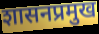
शासनप्रमुख